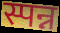
स्पन्न